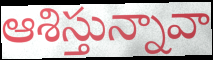
ఆశిస్తున్నావా